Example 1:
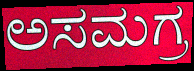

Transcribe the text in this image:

ಅಸಮಗ್ರ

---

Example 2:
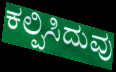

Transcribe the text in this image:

ಕಲ್ಪಿಸಿದುವು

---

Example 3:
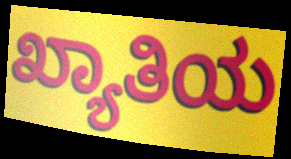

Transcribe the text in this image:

ಖ್ಯಾತಿಯ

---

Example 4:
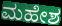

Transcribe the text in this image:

ಮಹೇಶ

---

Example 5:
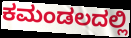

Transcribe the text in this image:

ಕಮಂಡಲದಲ್ಲಿ